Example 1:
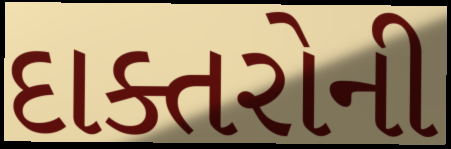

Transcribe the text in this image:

દાક્તરોની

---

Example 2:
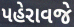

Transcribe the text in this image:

પહેરાવજે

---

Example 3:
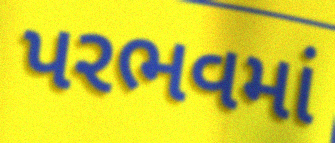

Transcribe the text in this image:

પરભવમાં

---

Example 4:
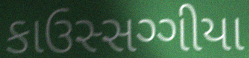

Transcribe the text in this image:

કાઉસ્સગ્ગીયા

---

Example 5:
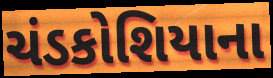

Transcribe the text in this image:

ચંડકોશિયાના